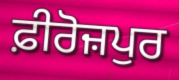
ਫ਼ੀਰੋਜ਼ਪੁਰ